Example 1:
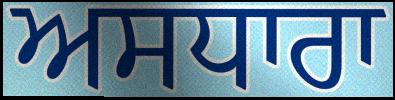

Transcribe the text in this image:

ਅਸਧਾਰਾ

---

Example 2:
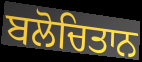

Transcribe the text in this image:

ਬਲੋਚਿਤਾਨ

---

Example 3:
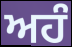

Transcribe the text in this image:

ਅਹੰ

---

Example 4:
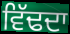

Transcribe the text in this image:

ਵਿੱਢਦਾ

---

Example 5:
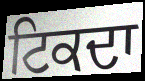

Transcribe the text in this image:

ਟਿਕਦਾ